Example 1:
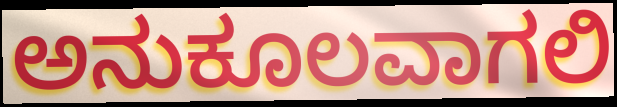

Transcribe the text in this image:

ಅನುಕೂಲವಾಗಲಿ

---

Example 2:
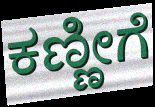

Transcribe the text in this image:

ಕಣ್ಣೀಗೆ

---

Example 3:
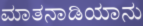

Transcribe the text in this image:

ಮಾತನಾಡಿಯಾನು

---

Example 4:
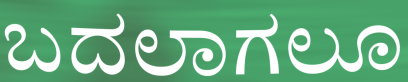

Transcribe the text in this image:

ಬದಲಾಗಲೂ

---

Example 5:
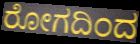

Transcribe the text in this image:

ರೋಗದಿಂದ